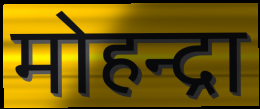
मोहन्द्रा